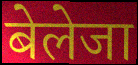
बेलेजा